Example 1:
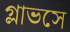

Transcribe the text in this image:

গ্লাভসে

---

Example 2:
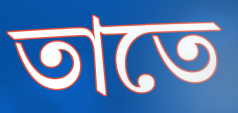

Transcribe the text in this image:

তাতে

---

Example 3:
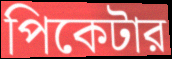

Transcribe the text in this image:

পিকেটার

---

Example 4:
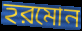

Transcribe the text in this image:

হরমোন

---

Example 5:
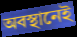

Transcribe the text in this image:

অবস্থানেই